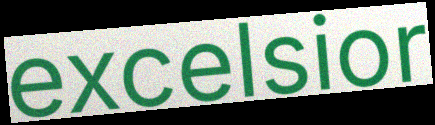
excelsior